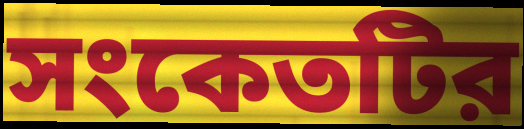
সংকেতটির